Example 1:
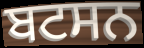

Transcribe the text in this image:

ਬਟਸਨ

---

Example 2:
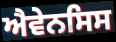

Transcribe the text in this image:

ਐਵੇਨਸਿਸ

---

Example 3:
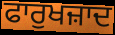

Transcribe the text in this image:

ਫਾਰੁਖਜ਼ਾਦ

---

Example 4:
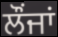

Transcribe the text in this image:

ਲੌਂਜਾਂ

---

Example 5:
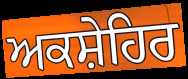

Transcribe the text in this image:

ਅਕਸ਼ੇਹਿਰ